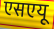
एसएयू